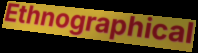
Ethnographical